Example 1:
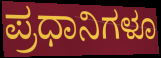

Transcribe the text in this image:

ಪ್ರಧಾನಿಗಳೂ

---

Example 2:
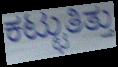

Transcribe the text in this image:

ಕಟ್ಟುತಿತ್ತು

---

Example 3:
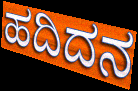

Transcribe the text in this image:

ಹದಿದನ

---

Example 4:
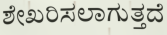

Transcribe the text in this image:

ಶೇಖರಿಸಲಾಗುತ್ತದೆ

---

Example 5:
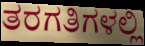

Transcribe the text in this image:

ತರಗತಿಗಳಲ್ಲಿ